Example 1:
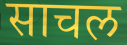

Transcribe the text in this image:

साचल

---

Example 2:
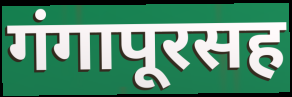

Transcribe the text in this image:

गंगापूरसह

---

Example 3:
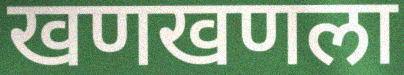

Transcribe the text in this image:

खणखणला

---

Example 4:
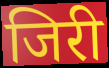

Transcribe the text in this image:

जिरी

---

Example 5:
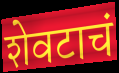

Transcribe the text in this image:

शेवटाचं